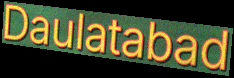
Daulatabad